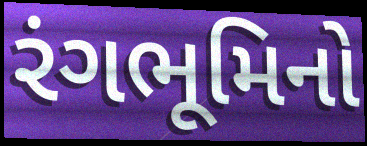
રંગભૂમિનો